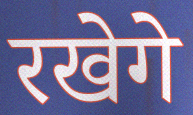
रखेगे